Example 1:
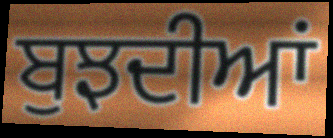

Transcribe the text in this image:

ਬੁਝਦੀਆਂ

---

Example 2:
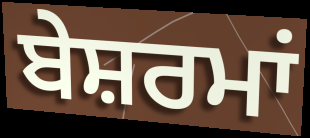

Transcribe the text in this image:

ਬੇਸ਼ਰਮਾਂ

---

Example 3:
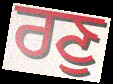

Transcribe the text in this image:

ਰਣੁ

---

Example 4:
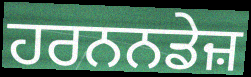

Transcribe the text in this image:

ਹਰਨਨਡੇਜ਼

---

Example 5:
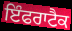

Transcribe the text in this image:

ਇੰਫਰਾਟੈਕ